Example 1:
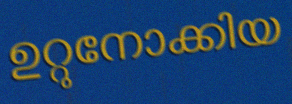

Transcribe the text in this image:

ഉറ്റുനോക്കിയ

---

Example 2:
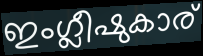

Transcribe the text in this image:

ഇംഗ്ലീഷുകാര്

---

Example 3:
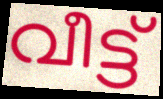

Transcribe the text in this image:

വീട്ട്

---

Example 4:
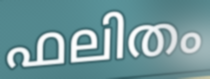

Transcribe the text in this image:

ഫലിതം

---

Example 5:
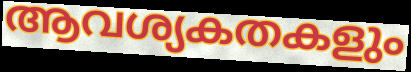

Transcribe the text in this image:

ആവശ്യകതകളും